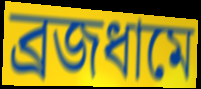
ব্রজধামে